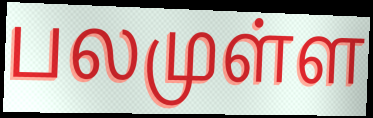
பலமுள்ள